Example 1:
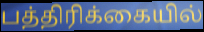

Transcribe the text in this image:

பத்திரிக்கையில்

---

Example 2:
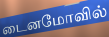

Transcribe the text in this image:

டைனமோவில்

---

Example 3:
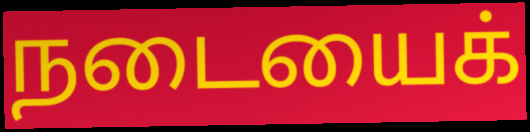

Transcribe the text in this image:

நடையைக்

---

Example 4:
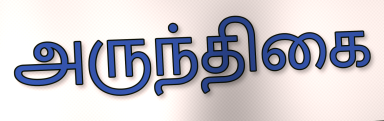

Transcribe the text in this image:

அருந்திகை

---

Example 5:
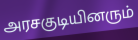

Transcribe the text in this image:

அரசகுடியினரும்